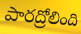
పారద్రోలింది